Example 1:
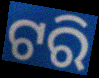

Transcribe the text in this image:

ଟରି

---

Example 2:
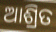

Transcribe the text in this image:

ଆଶ୍ରିତ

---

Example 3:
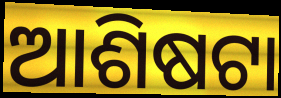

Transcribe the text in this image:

ଆଶିଷଟା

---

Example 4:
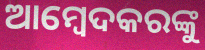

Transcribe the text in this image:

ଆମ୍ବେଦକରଙ୍କୁ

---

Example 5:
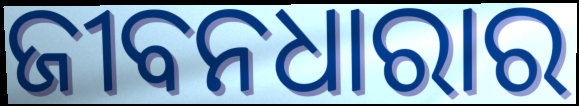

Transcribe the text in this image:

ଜୀବନଧାରାର